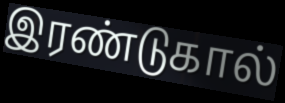
இரண்டுகால்